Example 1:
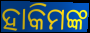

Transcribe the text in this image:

ହାକିମଙ୍କ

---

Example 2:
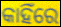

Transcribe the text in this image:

କାହିଁରେ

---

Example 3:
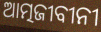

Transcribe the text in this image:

ଆତ୍ମଜୀବୀନୀ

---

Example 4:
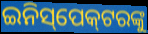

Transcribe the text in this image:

ଇନିସ୍‌ପେକ୍‍ଟରଙ୍କୁ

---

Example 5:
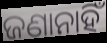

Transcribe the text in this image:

ଜଣାନାହିଁ